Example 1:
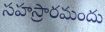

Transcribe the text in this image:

సహస్రారమందు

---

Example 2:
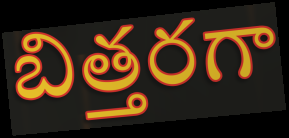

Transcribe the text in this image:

బిత్తరగా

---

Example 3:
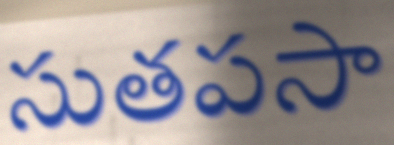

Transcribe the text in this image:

సుతపసా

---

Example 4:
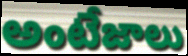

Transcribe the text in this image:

అంటేజాలు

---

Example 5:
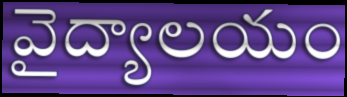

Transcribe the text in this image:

వైద్యాలయం